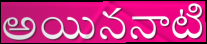
అయిననాటి